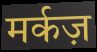
मर्कज़